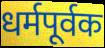
धर्मपूर्वक